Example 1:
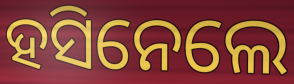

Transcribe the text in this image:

ହସିନେଲେ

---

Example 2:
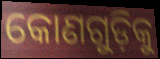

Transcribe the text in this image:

କୋଣଗୁଡ଼ିକୁ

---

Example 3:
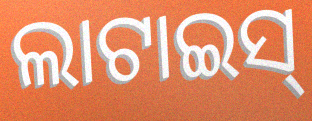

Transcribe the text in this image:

ଲାଟାଇସ୍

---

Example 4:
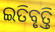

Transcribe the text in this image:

ଇତିବୃତ୍ତି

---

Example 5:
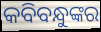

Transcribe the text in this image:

କବିବନ୍ଧୁଙ୍କର